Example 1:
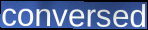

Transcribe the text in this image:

conversed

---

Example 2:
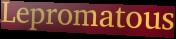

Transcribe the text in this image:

Lepromatous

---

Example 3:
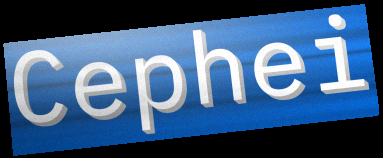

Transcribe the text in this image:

Cephei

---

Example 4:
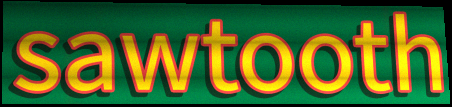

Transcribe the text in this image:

sawtooth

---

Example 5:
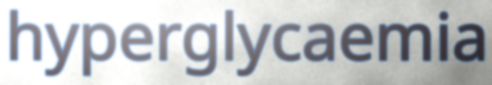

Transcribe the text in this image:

hyperglycaemia